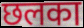
छलका